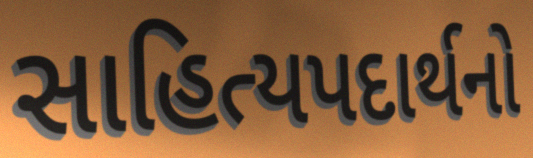
સાહિત્યપદાર્થનો